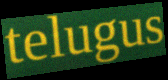
telugus